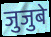
जुजुबे